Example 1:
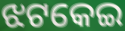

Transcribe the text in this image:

ଝଟକେଇ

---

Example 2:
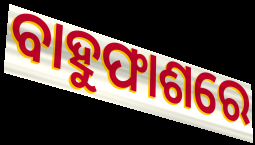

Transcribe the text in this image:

ବାହୁଫାଶରେ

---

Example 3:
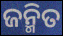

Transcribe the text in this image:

ଜନ୍ମିତ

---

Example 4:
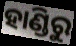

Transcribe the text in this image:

ହାଣ୍ଡିରୁ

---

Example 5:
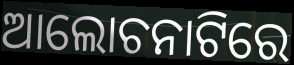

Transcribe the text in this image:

ଆଲୋଚନାଟିରେ